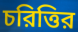
চরিত্তির